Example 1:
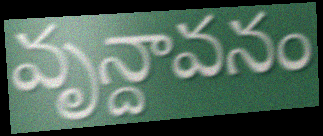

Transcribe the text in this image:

వృన్దావనం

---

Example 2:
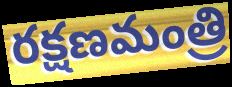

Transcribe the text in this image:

రక్షణమంత్రి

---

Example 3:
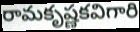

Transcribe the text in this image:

రామకృష్ణకవిగారి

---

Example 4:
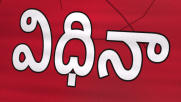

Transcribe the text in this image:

విధినా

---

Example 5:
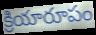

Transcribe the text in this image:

క్రియారూపం